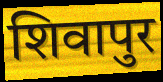
शिवापुर